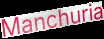
Manchuria